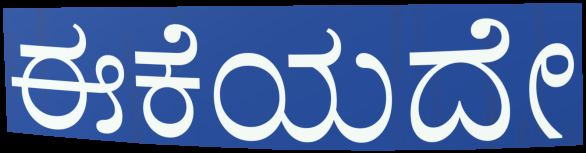
ಈಕೆಯದೇ